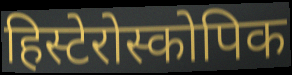
हिस्टेरोस्कोपिक